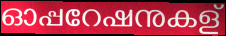
ഓപ്പറേഷനുകള്